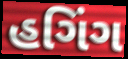
હગિંગ